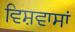
ਵਿਸ਼ਵਾਸਾਂ